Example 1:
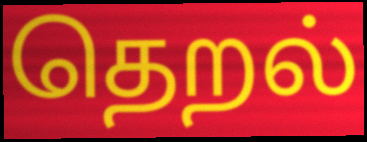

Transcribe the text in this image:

தெறல்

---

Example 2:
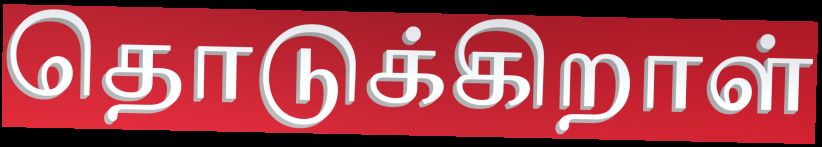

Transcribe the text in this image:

தொடுக்கிறாள்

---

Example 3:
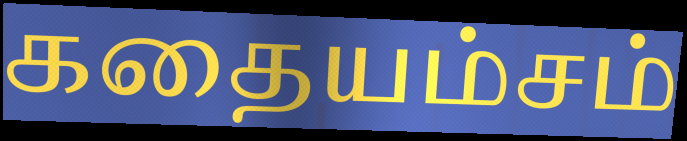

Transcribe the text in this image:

கதையம்சம்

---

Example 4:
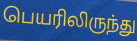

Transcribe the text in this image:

பெயரிலிருந்து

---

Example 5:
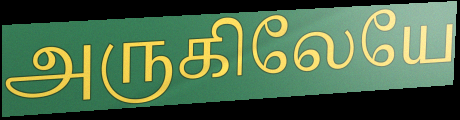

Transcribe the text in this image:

அருகிலேயே